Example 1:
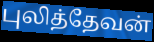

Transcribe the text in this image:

புலித்தேவன்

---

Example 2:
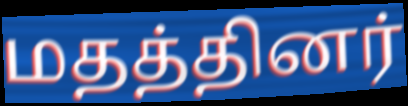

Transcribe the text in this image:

மதத்தினர்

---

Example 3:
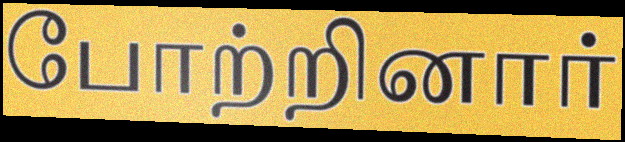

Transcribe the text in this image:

போற்றினார்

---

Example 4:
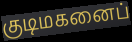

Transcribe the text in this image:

குடிமகனைப்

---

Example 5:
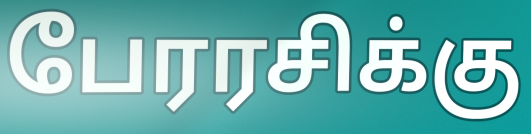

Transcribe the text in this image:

பேரரசிக்கு